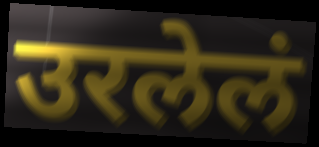
उरलेलं